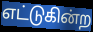
எட்டுகின்ற